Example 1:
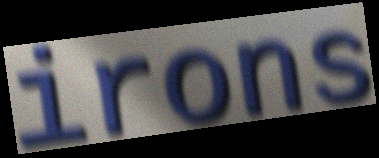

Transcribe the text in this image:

irons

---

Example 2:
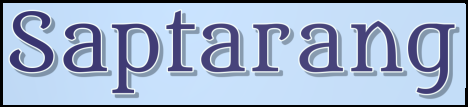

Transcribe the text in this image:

Saptarang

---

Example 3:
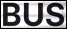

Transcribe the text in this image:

BUS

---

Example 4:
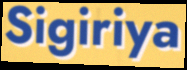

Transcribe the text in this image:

Sigiriya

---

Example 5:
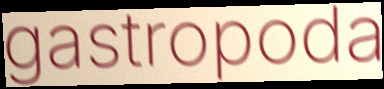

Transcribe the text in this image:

gastropoda